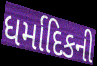
ધર્માદિકની